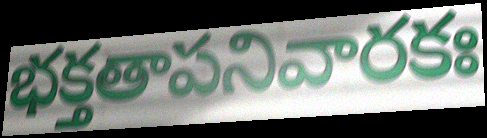
భక్తతాపనివారకః